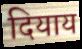
दियाय